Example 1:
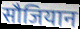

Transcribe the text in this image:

सौजियान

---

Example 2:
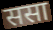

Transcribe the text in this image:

ससा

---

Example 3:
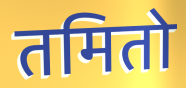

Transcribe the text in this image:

तमितो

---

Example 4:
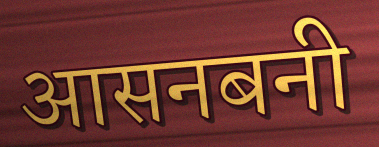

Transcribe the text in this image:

आसनबनी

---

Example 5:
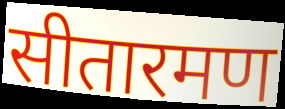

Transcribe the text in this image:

सीतारमण